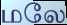
மலே